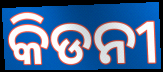
କିଡନୀ